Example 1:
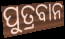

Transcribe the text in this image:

ପୁତ୍ରବାନ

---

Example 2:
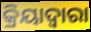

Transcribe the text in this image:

କ୍ରିୟାଦ୍ଵାରା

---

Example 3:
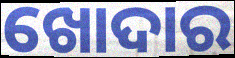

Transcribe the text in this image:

ଖୋଦାର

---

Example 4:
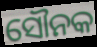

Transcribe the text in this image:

ସୌନକ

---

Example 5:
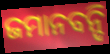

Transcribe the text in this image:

ଜମାନବନ୍ଦି